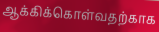
ஆக்கிக்கொள்வதற்காக